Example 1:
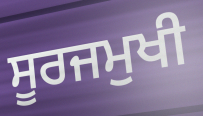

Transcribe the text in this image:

ਸੂਰਜਮੁਖੀ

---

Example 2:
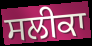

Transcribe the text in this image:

ਸਲੀਕਾ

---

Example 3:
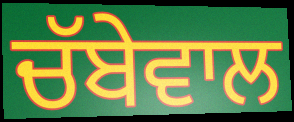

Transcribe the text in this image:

ਚੱਬੇਵਾਲ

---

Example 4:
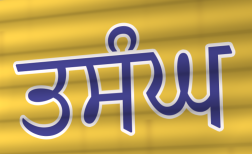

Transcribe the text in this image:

ਤਸੰਘ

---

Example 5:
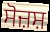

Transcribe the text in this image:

ਸੋਜ਼ਸ਼